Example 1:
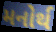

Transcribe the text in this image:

મનોર્થ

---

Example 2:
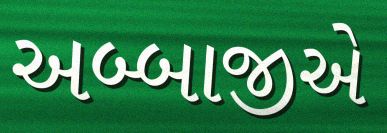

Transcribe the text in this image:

અબ્બાજીએ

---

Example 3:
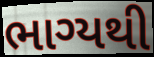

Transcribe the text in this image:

ભાગ્યથી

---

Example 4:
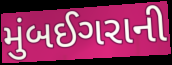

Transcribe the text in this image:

મુંબઈગરાની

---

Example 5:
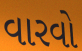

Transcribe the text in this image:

વારવો